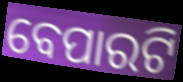
ବେପାରଟି